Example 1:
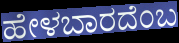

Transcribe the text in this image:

ಹೇಳಬಾರದೆಂಬ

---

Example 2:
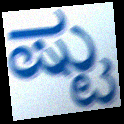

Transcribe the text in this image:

ಷ್ಟು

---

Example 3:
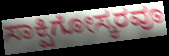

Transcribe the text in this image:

ಸಾಕ್ಷಿಗೋಸ್ಕರವೂ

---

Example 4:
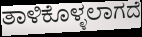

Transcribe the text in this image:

ತಾಳಿಕೊಳ್ಳಲಾಗದೆ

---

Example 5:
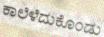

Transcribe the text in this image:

ಕಾಲೆಳೆದುಕೊಂಡು